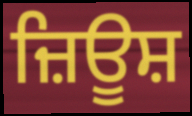
ਜ਼ਿਊਸ਼